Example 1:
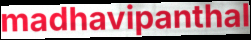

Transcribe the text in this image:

madhavipanthal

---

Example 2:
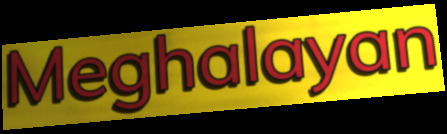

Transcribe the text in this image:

Meghalayan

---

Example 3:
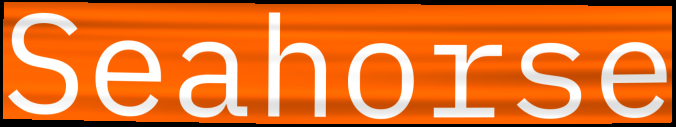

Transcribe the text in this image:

Seahorse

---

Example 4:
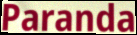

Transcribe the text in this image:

Paranda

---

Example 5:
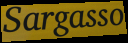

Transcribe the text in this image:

Sargasso